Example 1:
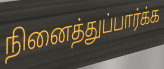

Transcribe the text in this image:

நினைத்துப்பார்க்க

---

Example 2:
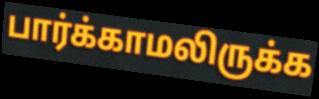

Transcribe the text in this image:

பார்க்காமலிருக்க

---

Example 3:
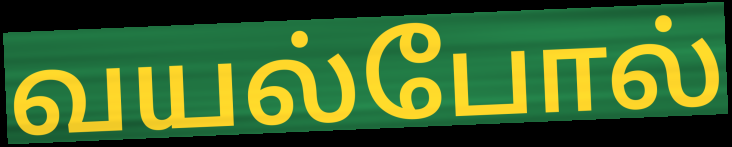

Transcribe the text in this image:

வயல்போல்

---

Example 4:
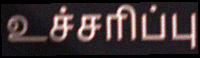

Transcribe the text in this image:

உச்சரிப்பு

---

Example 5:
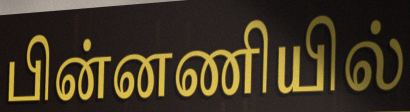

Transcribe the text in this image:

பின்னணியில்